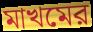
মাখমের